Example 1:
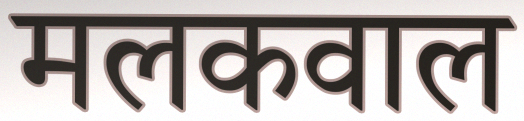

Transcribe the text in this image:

मलकवाल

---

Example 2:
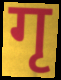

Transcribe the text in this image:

गृ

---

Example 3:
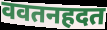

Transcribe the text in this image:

ववतनहदत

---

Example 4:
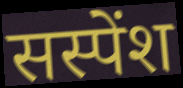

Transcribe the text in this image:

सस्पेंश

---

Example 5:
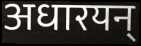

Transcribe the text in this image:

अधारयन्